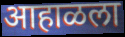
आहाळला